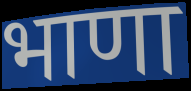
भाणा